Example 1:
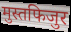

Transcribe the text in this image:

मुस्तफिजुर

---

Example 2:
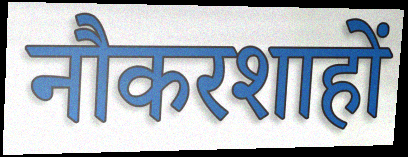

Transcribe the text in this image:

नौकरशाहों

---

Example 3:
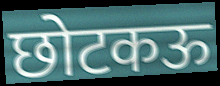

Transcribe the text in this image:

छोटकऊ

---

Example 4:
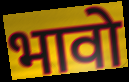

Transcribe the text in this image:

भावो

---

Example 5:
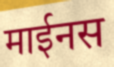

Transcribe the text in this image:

माईनस